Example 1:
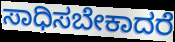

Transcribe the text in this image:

ಸಾಧಿಸಬೇಕಾದರೆ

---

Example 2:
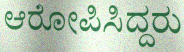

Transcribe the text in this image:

ಆರೋಪಿಸಿದ್ದರು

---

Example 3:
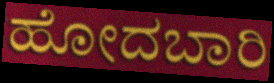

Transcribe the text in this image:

ಹೋದಬಾರಿ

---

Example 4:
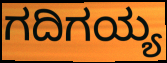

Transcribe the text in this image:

ಗದಿಗಯ್ಯ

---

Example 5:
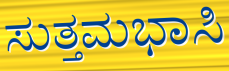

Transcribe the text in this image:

ಸುತ್ತಮಭಾಸಿ